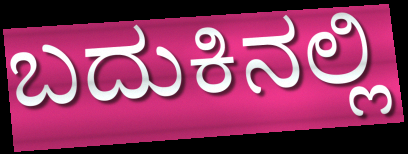
ಬದುಕಿನಲ್ಲಿ